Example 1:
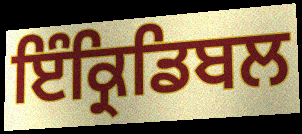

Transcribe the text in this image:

ਇੰਕ੍ਰਿਡਿਬਲ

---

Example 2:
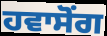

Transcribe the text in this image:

ਹਵਾਸੋਂਗ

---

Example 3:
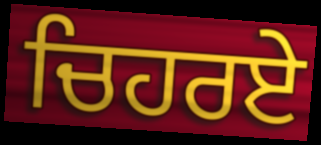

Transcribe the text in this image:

ਚਿਹਰਏ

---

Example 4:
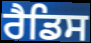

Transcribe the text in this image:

ਰੈਡਿਸ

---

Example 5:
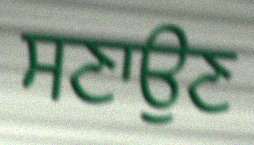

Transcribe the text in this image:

ਸਣਾਉਣ